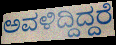
ಅವಳಿದ್ದಿದ್ದರೆ